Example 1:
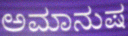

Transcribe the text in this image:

ಅಮಾನುಷ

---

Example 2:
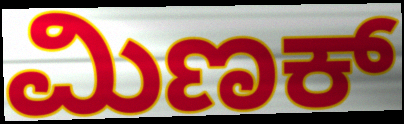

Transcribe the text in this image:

ಮಿಣಕ್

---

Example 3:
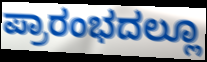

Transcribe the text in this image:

ಪ್ರಾರಂಭದಲ್ಲೂ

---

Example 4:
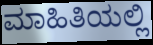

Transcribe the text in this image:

ಮಾಹಿತಿಯಲ್ಲಿ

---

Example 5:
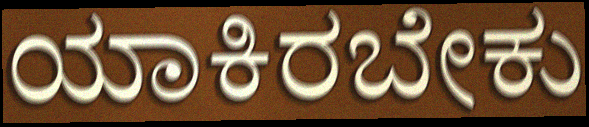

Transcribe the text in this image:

ಯಾಕಿರಬೇಕು